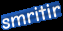
smritir